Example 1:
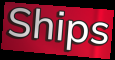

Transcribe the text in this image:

Ships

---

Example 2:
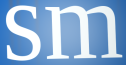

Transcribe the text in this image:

sm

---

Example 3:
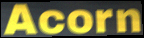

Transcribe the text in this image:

Acorn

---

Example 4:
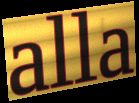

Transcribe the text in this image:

alla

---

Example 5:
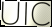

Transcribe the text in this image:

UIC